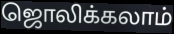
ஜொலிக்கலாம்